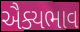
ઐક્યભાવ